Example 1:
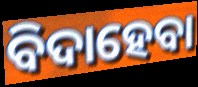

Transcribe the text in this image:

ବିଦାହେବା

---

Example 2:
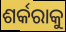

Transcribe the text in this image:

ଶର୍କରାକୁ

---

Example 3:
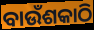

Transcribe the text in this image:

ବାଉଁଶକାଠି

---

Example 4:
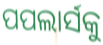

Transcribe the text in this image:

ପପଲାର୍ସକୁ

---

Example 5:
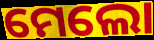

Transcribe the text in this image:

ମେଲୋ